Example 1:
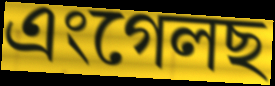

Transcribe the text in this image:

এংগেলছ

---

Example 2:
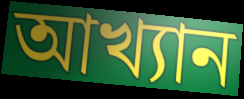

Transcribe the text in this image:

আখ্যান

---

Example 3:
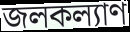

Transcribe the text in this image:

জলকল্যাণ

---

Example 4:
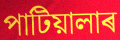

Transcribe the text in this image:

পাটিয়ালাৰ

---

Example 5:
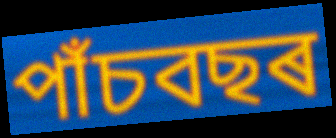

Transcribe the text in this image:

পাঁচবছৰ